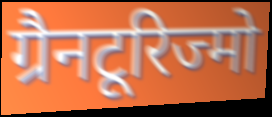
ग्रैनटूरिज्मो